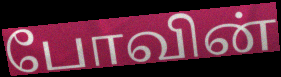
போவின்